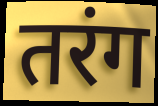
तरंग